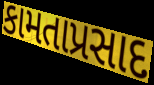
કામતાપ્રસાદ